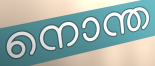
നൊന്ത